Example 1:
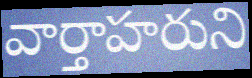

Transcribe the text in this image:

వార్తాహరుని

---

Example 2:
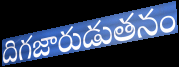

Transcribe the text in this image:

దిగజారుడుతనం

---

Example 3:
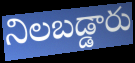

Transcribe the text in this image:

నిలబడ్డారు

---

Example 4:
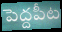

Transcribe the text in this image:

పెద్దపీట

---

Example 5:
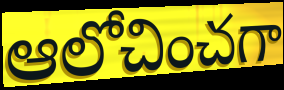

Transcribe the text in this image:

ఆలోచించగా